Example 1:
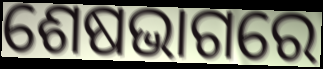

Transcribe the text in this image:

ଶେଷଭାଗରେ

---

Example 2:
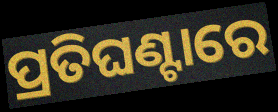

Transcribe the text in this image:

ପ୍ରତିଘଣ୍ଟାରେ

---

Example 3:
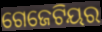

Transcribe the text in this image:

ଗେଜେଟିୟର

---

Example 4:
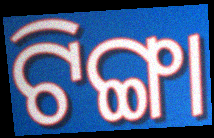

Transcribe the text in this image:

ଟିଙ୍ଗା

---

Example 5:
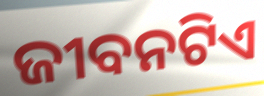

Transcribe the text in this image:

ଜୀବନଟିଏ